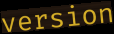
version